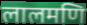
लालमणि